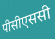
पीसीएससी